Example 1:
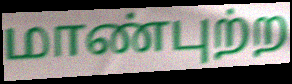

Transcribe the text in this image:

மாண்புற்ற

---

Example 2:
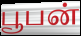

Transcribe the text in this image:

பூபன்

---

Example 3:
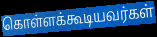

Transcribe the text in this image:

கொள்ளக்கூடியவர்கள்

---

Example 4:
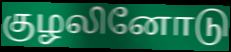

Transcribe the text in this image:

குழலினோடு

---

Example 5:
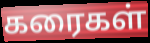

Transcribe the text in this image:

கரைகள்